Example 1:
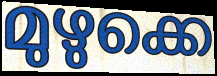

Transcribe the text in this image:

മുഴുക്കെ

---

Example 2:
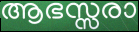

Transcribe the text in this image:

ആഭസ്സരാ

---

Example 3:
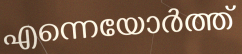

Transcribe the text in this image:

എന്നെയോർത്ത്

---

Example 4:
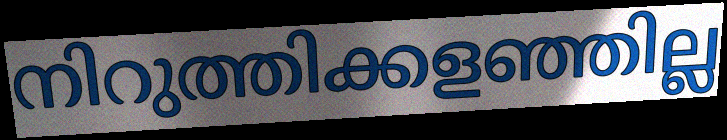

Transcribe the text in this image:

നിറുത്തിക്കളഞ്ഞില്ല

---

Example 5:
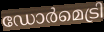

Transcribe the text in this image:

ഡോർമെട്രി